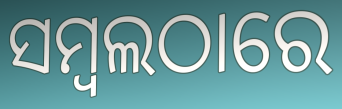
ସମ୍ବଲଠାରେ